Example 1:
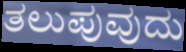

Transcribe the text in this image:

ತಲುಪುವುದು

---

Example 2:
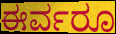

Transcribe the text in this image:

ಈರ್ವರೂ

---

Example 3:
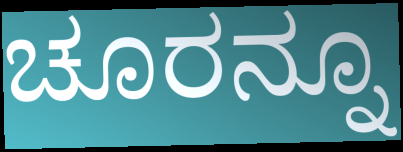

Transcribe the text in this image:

ಚೂರನ್ನೂ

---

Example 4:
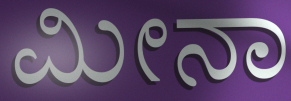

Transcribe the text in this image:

ಮೀನಾ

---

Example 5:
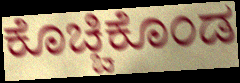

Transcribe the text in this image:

ಕೊಚ್ಚಿಕೊಂಡ